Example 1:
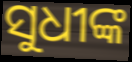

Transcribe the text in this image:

ସୁଧୀଙ୍କ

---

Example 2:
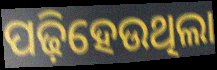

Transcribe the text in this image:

ପଢ଼ିହେଉଥିଲା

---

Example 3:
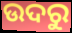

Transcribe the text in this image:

ଉଦରୁ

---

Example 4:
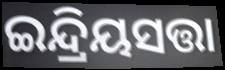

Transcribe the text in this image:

ଇନ୍ଦ୍ରିୟସତ୍ତା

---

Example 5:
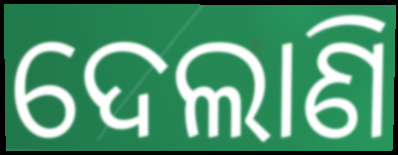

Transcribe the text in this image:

ଦେଲାଣି